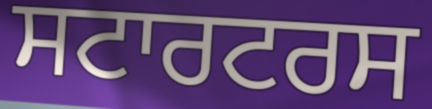
ਸਟਾਰਟਰਸ